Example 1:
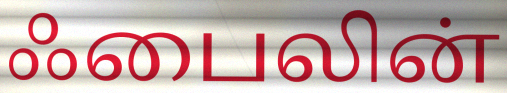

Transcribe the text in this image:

ஃபைலின்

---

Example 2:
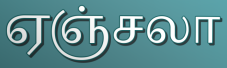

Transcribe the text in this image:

ஏஞ்சலா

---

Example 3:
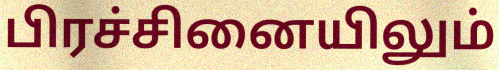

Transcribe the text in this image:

பிரச்சினையிலும்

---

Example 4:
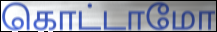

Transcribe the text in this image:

கொட்டாமோ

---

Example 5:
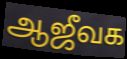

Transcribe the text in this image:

ஆஜீவக